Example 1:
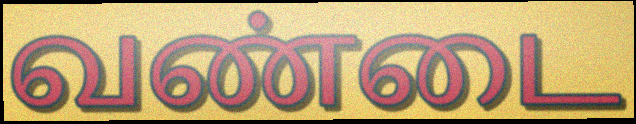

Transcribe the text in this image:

வண்டை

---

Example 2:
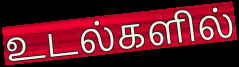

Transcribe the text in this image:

உடல்களில்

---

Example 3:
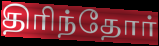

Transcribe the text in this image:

திரிந்தோர்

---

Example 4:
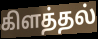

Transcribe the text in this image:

கிளத்தல்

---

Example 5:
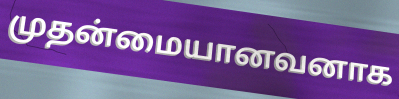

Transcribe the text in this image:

முதன்மையானவனாக